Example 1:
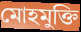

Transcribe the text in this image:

মোহমুক্তি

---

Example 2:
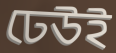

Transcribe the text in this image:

ঢেউই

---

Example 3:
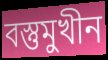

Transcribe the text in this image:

বস্তুমুখীন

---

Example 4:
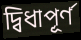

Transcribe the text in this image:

দ্বিধাপূর্ণ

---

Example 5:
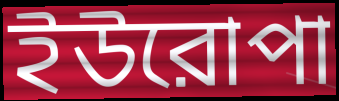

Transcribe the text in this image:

ইউরোপা